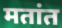
मतांत